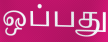
ஒப்பது